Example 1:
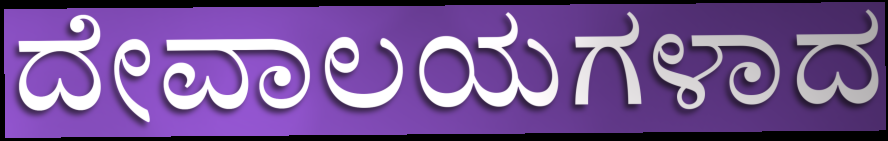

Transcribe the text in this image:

ದೇವಾಲಯಗಳಾದ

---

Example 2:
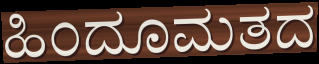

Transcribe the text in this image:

ಹಿಂದೂಮತದ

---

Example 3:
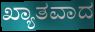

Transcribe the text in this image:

ಖ್ಯಾತವಾದ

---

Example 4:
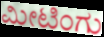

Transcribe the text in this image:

ಮೀಟಿಂಗು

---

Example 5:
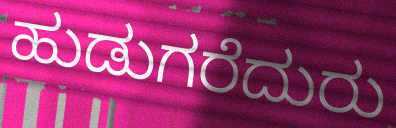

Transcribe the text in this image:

ಹುಡುಗರೆದುರು